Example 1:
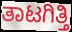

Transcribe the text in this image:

ತಾಟಗಿತ್ತಿ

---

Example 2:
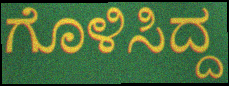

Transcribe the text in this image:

ಗೊಳಿಸಿದ್ದ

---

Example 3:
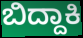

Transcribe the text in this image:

ಬಿದ್ದಾಕಿ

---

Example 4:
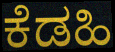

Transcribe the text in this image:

ಕೆಡಹಿ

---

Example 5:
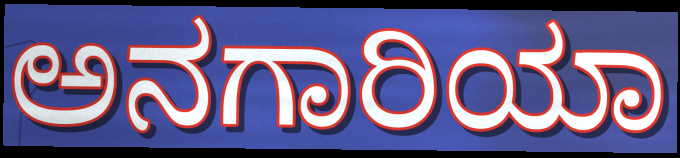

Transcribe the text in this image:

ಅನಗಾರಿಯಾ